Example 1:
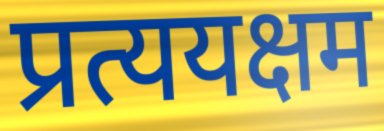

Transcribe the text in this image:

प्रत्ययक्षम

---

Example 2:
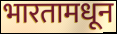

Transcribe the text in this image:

भारतामधून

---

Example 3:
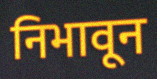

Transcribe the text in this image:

निभावून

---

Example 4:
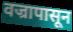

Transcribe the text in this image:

वज्रापासून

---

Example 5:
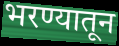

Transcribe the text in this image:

भरण्यातून